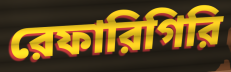
রেফারিগিরি